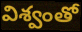
విశ్వంతో